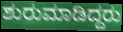
ಶುರುಮಾಡಿದ್ದರು